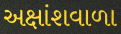
અક્ષાંશવાળા